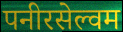
पनीरसेल्वम